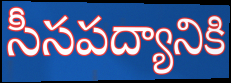
సీసపద్యానికి